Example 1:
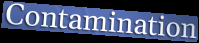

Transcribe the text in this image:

Contamination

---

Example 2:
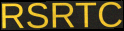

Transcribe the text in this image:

RSRTC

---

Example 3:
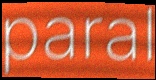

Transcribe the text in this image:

paral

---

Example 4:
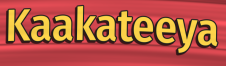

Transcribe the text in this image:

Kaakateeya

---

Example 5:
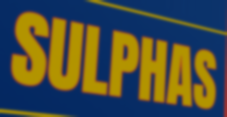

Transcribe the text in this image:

SULPHAS